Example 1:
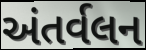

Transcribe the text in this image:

અંતર્વલન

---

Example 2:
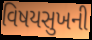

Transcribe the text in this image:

વિષયસુખની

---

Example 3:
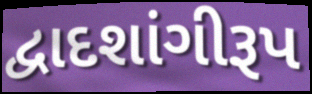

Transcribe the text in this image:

દ્વાદશાંગીરૂપ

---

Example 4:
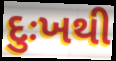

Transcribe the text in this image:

દુઃખથી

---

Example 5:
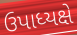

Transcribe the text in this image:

ઉપાધ્યક્ષે